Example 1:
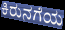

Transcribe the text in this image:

ಕಿರುನಗೆಯ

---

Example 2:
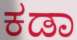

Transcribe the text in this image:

ಕಡಾ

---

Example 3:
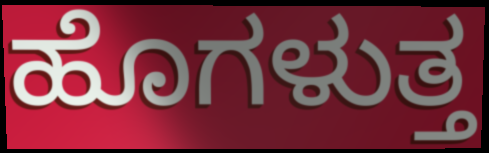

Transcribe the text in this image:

ಹೊಗಳುತ್ತ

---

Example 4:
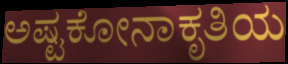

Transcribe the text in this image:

ಅಷ್ಟಕೋನಾಕೃತಿಯ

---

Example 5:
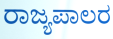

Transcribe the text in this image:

ರಾಜ್ಯಪಾಲರ